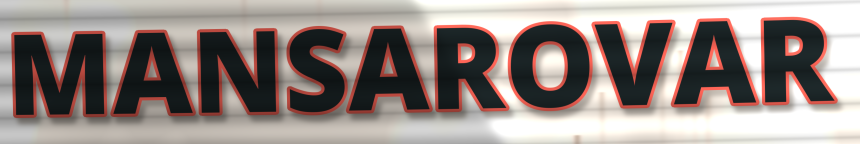
MANSAROVAR